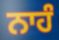
ਨਾਹੰ